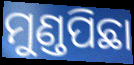
ମୁଣ୍ଡପିଛା